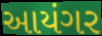
આયંગર